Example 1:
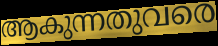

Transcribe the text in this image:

ആകുന്നതുവരെ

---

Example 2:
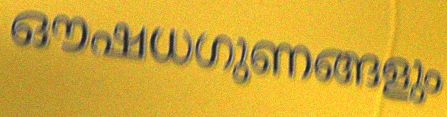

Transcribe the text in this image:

ഔഷധഗുണങ്ങളും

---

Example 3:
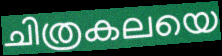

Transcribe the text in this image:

ചിത്രകലയെ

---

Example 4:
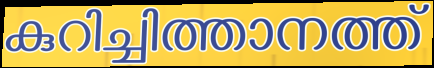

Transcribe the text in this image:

കുറിച്ചിത്താനത്ത്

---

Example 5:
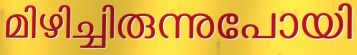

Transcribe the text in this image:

മിഴിച്ചിരുന്നുപോയി